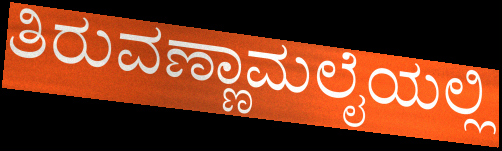
ತಿರುವಣ್ಣಾಮಲೈಯಲ್ಲಿ